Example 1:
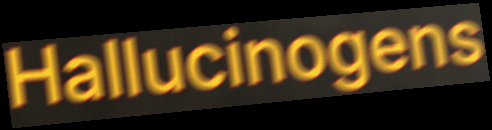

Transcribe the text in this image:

Hallucinogens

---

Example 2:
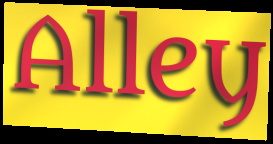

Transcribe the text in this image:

Alley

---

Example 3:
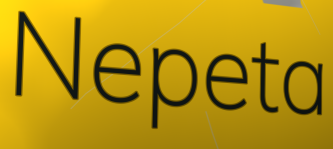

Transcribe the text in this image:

Nepeta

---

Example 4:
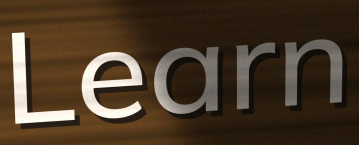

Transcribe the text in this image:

Learn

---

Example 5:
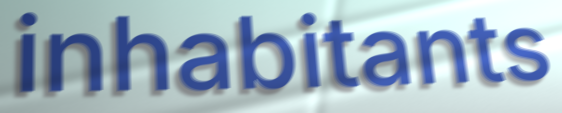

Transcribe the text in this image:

inhabitants